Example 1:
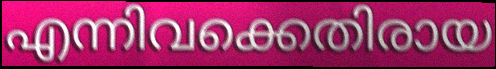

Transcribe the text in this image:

എന്നിവക്കെതിരായ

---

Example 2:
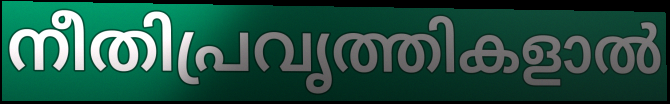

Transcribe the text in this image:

നീതിപ്രവൃത്തികളാൽ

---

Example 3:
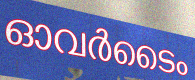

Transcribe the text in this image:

ഓവർടൈം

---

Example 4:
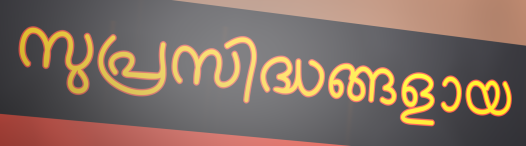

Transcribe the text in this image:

സുപ്രസിദ്ധങ്ങളായ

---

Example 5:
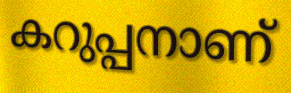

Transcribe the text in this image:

കറുപ്പനാണ്